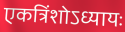
एकत्रिंशोऽध्यायः